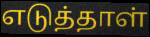
எடுத்தாள்